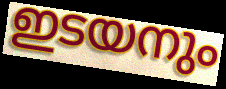
ഇടയനും